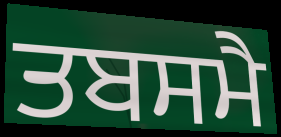
ਤਬਸਮੈ